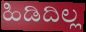
ಹಿಡಿದಿಲ್ಲ